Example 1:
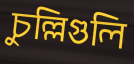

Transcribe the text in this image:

চুল্লিগুলি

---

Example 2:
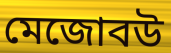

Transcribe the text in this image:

মেজোবউ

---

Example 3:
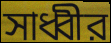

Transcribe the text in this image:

সাধ্বীর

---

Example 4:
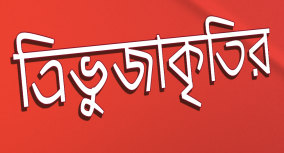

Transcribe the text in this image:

ত্রিভুজাকৃতির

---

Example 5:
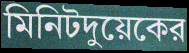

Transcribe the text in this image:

মিনিটদুয়েকের